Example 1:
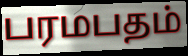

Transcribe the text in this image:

பரமபதம்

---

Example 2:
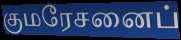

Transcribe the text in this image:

குமரேசனைப்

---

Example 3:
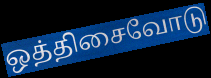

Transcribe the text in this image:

ஒத்திசைவோடு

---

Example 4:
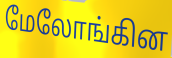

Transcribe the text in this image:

மேலோங்கின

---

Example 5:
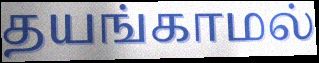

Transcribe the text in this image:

தயங்காமல்